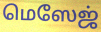
மெஸேஜ்